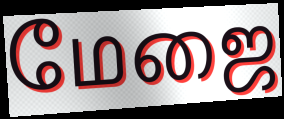
மேஜை